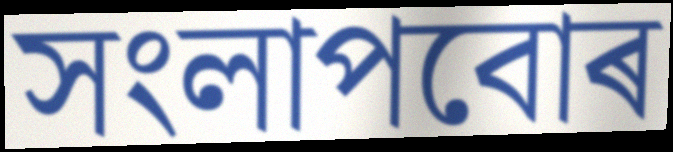
সংলাপবোৰ